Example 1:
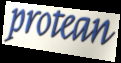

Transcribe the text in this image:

protean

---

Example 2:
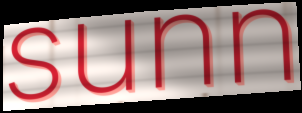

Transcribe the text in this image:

sunn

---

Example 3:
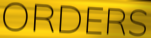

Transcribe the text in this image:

ORDERS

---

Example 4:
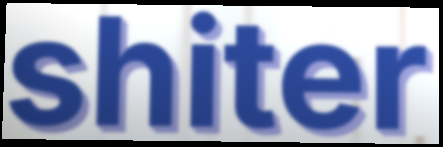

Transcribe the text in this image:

shiter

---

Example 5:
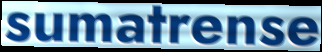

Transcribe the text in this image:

sumatrense